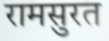
रामसुरत